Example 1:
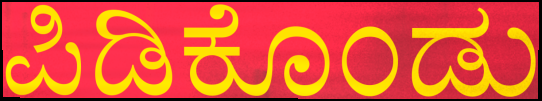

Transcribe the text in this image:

ಪಿಡಿಕೊಂಡು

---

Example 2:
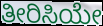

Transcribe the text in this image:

ತೀರಿಸಿಯೇ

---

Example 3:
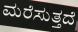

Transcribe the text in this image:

ಮರೆಸುತ್ತದೆ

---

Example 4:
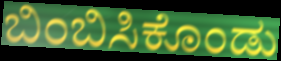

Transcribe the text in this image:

ಬಿಂಬಿಸಿಕೊಂಡು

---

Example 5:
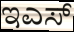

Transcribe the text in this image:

ಇಎಸ್